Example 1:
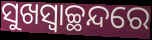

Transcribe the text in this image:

ସୁଖସ୍ୱାଚ୍ଛନ୍ଦରେ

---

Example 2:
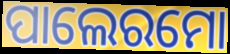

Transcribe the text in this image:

ପାଲେରମୋ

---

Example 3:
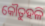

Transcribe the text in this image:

କୌତୁହଳି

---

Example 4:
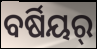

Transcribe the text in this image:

ବର୍ଷିୟର୍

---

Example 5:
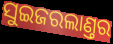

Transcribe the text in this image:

ସୁଇଜରଲାଣ୍ତର